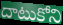
దాటుకోని